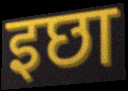
इछा